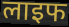
लाइफ